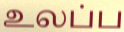
உலப்ப